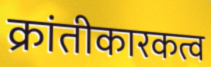
क्रांतीकारकत्व